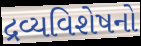
દ્રવ્યવિશેષનો